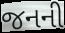
જનની